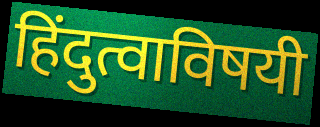
हिंदुत्वाविषयी